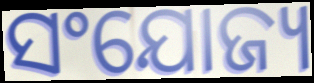
ସଂଯୋଜ୍ୟ